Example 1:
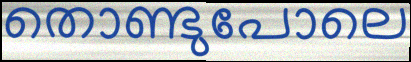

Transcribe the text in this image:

തൊണ്ടുപോലെ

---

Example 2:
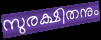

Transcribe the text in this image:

സുരക്ഷിതനും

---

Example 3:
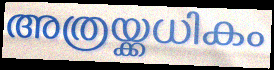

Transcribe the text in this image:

അത്രയ്ക്കധികം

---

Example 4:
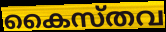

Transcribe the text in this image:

കൈസ്തവ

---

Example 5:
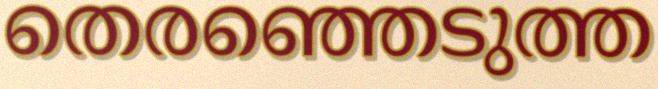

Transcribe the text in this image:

തെരഞ്ഞെടുത്ത